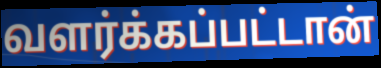
வளர்க்கப்பட்டான்